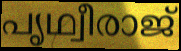
പൃഥ്വീരാജ്